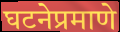
घटनेप्रमाणे